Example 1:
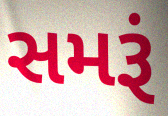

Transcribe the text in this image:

સમરૂં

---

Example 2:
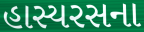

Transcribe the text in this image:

હાસ્યરસના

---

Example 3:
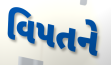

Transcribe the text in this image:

વિપતને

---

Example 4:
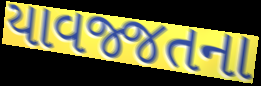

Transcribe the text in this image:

યાવજ્જતના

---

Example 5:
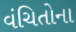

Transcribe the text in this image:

વંચિતોના